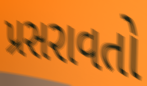
પ્રસરાવતો